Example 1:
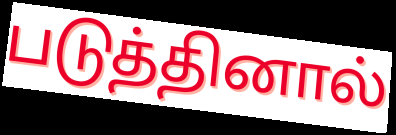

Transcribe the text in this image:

படுத்தினால்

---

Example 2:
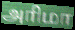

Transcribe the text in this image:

அரிமா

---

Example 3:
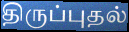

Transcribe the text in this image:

திருப்புதல்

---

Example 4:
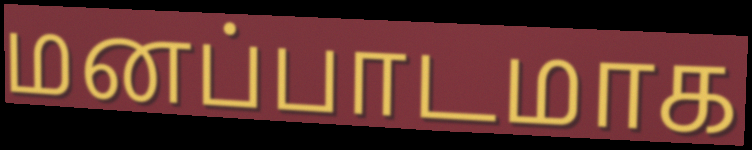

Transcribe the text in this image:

மனப்பாடமாக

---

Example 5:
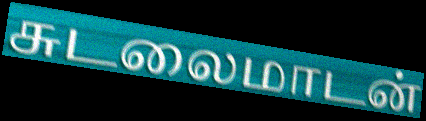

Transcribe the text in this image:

சுடலைமாடன்